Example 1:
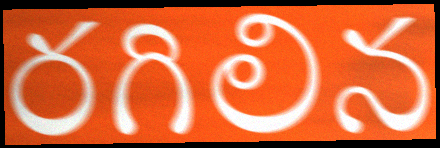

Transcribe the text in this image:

రగిలిన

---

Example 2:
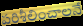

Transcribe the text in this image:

పరిశీలించాలనే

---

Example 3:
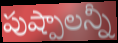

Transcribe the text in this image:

పుష్పాలన్నీ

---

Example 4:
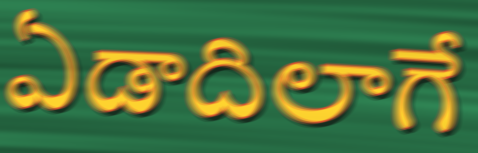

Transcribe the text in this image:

ఏడాదిలాగే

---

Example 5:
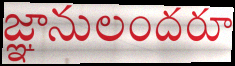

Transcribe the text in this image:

జ్ఞానులందరూ